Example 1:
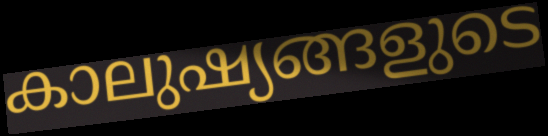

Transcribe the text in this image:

കാലുഷ്യങ്ങളുടെ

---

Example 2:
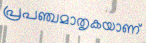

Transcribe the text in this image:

പ്രപഞ്ചമാതൃകയാണ്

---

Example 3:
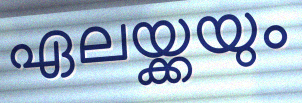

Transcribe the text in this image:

ഏലയ്ക്കയും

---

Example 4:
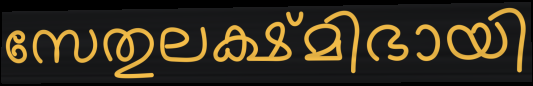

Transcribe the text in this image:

സേതുലക്ഷ്മിഭായി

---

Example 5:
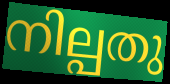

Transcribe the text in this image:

നില്പതു